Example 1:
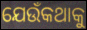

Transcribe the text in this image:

ଯେଉଁକଥାକୁ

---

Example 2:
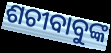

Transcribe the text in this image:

ଶଚୀବାବୁଙ୍କ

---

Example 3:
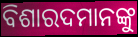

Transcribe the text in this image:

ବିଶାରଦମାନଙ୍କୁ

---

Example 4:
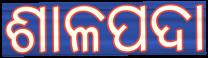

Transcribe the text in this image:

ଶାଳପଦା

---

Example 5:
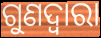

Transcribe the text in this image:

ଗୁଣଦ୍ଵାରା